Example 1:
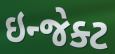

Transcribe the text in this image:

ઇન્જેક્ટ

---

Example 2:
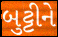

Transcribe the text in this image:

બુટ્ટીને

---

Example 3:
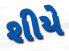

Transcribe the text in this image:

શીયે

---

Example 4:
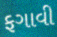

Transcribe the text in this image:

ફગાવી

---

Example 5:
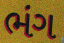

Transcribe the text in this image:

ભંગ